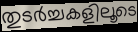
തുടർച്ചകളിലൂടെ